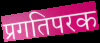
प्रगतिपरक